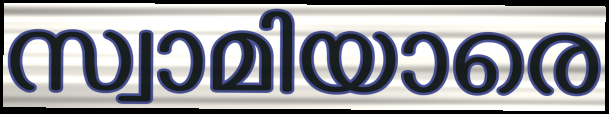
സ്വാമിയാരെ